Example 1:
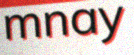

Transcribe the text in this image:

mnay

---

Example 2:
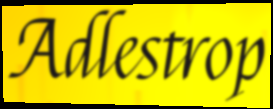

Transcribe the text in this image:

Adlestrop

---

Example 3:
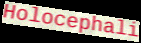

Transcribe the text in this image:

Holocephali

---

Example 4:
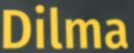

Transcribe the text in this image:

Dilma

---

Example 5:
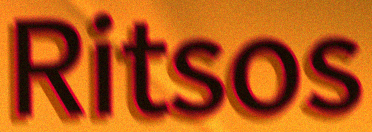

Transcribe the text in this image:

Ritsos